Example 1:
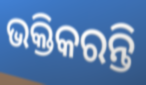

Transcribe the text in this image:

ଭକ୍ତିକରନ୍ତି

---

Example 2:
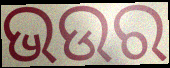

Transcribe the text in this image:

ଭଉର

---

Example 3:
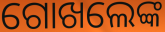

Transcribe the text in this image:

ଗୋଖଲେଙ୍କ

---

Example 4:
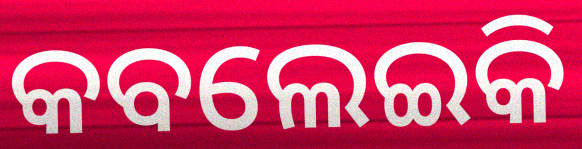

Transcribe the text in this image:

କବଲେଇକି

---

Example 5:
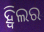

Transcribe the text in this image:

ହ୍ଵିଲର